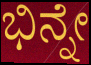
ಭಿನ್ನೇ